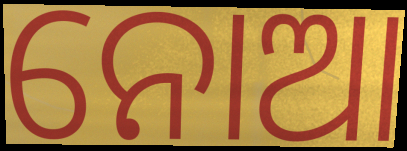
ନୋଆ